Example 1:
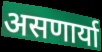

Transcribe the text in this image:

असणार्या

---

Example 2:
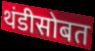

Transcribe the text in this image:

थंडीसोबत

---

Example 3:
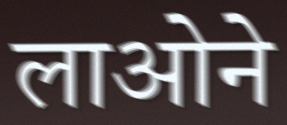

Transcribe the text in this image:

लाओने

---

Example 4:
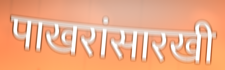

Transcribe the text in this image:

पाखरांसारखी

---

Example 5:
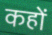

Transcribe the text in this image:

कहों